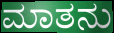
ಮಾತನು